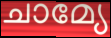
ചാമ്യേ